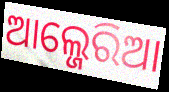
ଆଲ୍ଜେରିଆ